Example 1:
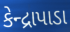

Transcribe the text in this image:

કેન્દ્રાપાડા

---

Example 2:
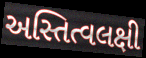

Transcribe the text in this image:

અસ્તિત્વલક્ષી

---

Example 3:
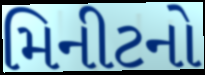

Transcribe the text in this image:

મિનીટનો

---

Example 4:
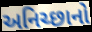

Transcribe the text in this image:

અનિચ્છાનો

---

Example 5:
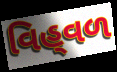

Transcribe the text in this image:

વિહ્‌વળ